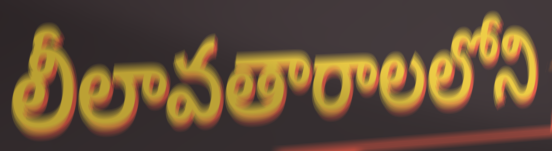
లీలావతారాలలోని